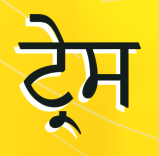
ਟ੍ਰੇਸ